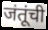
जंतूंची